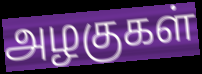
அழகுகள்